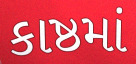
કાષ્ઠમાં